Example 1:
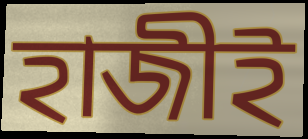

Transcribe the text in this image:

হাজীই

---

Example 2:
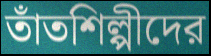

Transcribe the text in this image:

তাঁতশিল্পীদের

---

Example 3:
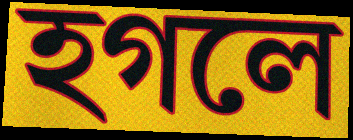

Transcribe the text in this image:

হগলে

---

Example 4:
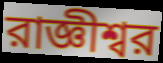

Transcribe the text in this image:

রাজ্ঞীশ্বর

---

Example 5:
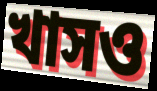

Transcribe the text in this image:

খাসও